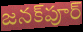
జనక్‌పూర్